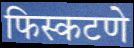
फिस्कटणे